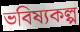
ভবিষ্যকল্প